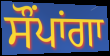
ਸੌਂਪਾਂਗਾ